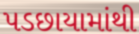
પડછાયામાંથી